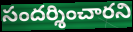
సందర్శించారని